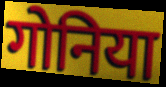
गोनिया